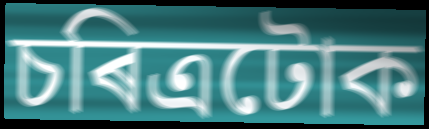
চৰিত্ৰটোক